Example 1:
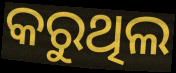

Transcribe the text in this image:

କରୁଥିଲ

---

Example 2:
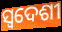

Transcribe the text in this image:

ସ୍ଵଦେଶୀ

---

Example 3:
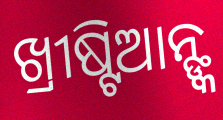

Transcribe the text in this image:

ଖ୍ରୀଷ୍ଟିଆନ୍ଙ୍କ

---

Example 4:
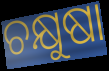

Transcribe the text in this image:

ଚକ୍ଷୁଷା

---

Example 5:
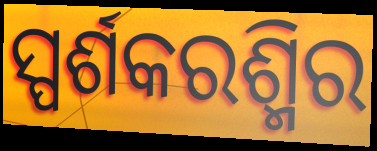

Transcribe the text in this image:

ସ୍ପର୍ଶକରଶ୍ମିର